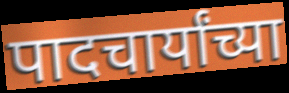
पादचार्यांच्या